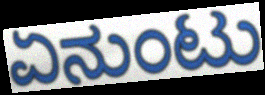
ಏನುಂಟು